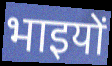
भाइयों